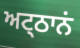
ਅਟ੍ਠਾਨਂ